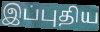
இப்புதிய